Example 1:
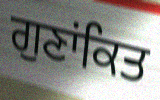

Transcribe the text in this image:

ਗੁਣਾਂਕਿਤ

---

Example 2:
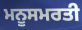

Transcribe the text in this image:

ਮਨੂਸਮਰਤੀ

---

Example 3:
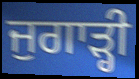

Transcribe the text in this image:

ਜੁਗਾੜ੍ਹੀ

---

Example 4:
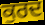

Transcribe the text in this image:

ਕੁਰਦ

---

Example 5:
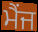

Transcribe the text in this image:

ਮੈਂਜ